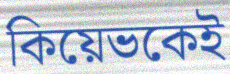
কিয়েভকেই